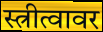
स्त्रीत्वावर